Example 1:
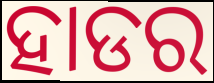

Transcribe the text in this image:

ହାଡର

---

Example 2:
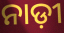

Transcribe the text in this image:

ନାଡ଼ୀ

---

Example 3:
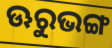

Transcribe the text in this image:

ଊରୁଭଙ୍ଗ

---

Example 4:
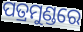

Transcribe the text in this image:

ପତ୍ରମୁଣ୍ଡରେ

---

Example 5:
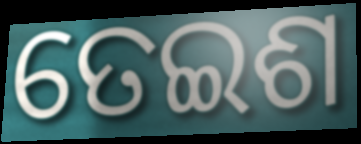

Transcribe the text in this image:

ତେଇଶ